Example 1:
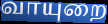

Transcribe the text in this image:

வாயுறை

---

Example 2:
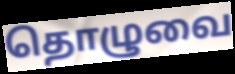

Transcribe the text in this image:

தொழுவை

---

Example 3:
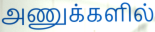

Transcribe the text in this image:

அணுக்களில்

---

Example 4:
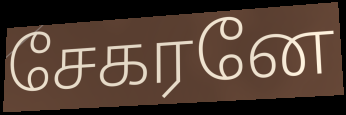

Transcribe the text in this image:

சேகரனே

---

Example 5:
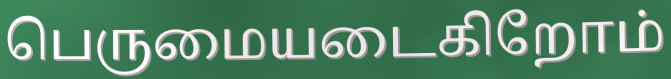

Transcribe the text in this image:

பெருமையடைகிறோம்